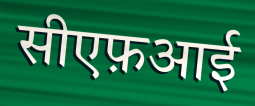
सीएफ़आई